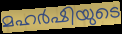
മഹർഷിയുടെ